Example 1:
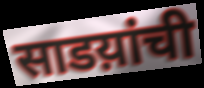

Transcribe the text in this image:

साडय़ांची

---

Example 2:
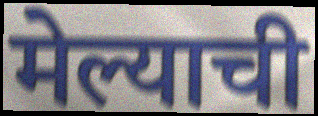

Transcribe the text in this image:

मेल्याची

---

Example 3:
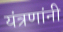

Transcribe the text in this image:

यंत्रणांनी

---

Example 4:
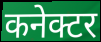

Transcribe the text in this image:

कनेक्टर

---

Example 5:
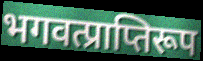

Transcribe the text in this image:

भगवत्प्राप्तिरूप